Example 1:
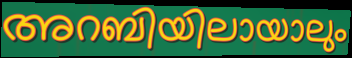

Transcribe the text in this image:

അറബിയിലായാലും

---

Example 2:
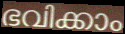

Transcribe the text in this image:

ഭവിക്കാം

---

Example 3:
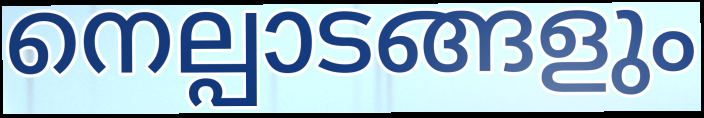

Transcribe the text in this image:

നെല്പാടങ്ങളും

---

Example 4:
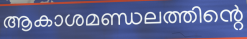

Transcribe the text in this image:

ആകാശമണ്ഡലത്തിന്റെ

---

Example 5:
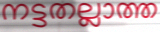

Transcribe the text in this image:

നട്ടതല്ലാത്ത